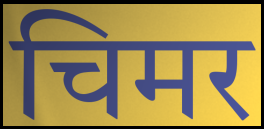
चिमर